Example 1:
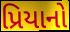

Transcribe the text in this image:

પ્રિયાનો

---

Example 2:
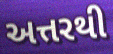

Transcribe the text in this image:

અત્તરથી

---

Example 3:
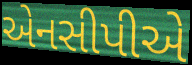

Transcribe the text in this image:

એનસીપીએ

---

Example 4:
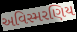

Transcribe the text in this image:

અવિસ્મરણિય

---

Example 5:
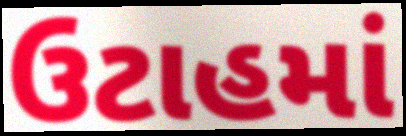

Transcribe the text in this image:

ઉટાહમાં